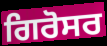
ਗਿਰੋਸਰ